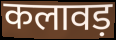
कलावड़